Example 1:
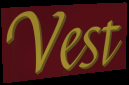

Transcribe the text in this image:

Vest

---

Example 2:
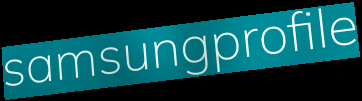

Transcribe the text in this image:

samsungprofile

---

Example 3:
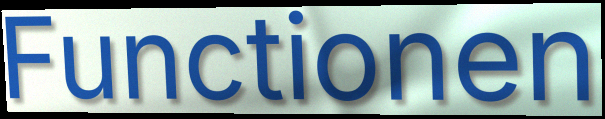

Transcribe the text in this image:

Functionen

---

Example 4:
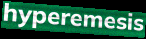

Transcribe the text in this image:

hyperemesis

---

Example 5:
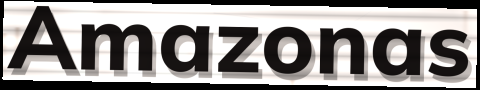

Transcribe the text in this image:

Amazonas